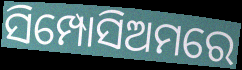
ସିମ୍ପୋସିଅମରେ